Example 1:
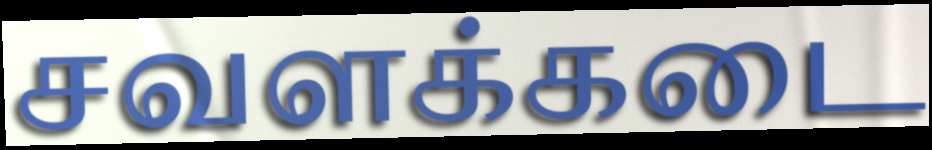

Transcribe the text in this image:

சவளக்கடை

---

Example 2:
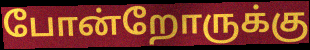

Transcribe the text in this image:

போன்றோருக்கு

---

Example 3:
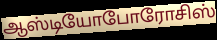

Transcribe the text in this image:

ஆஸ்டியோபோரோசிஸ்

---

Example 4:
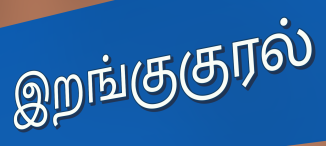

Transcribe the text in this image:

இறங்குகுரல்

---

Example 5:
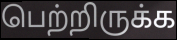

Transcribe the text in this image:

பெற்றிருக்க